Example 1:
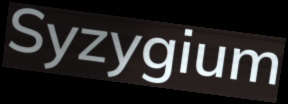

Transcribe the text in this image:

Syzygium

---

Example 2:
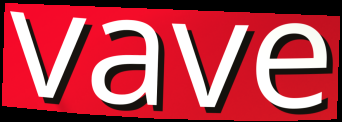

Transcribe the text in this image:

vave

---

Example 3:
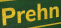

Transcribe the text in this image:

Prehn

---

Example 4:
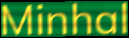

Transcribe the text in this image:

Minhal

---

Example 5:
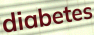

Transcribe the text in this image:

diabetes